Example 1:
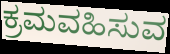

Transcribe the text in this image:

ಕ್ರಮವಹಿಸುವ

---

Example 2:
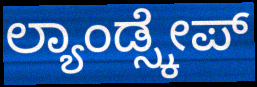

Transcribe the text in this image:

ಲ್ಯಾಂಡ್ಸ್ಕೇಪ್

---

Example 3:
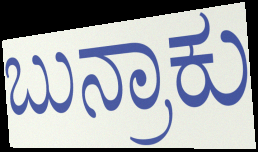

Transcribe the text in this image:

ಬುನ್ರಾಕು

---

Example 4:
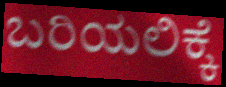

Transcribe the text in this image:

ಬರಿಯಲಿಕ್ಕೆ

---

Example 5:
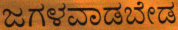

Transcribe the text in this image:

ಜಗಳವಾಡಬೇಡ